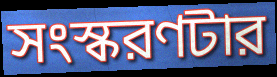
সংস্করণটার